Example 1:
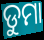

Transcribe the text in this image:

ଡୁମା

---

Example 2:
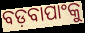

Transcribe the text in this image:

ବଡ଼ବାପାଂକୁ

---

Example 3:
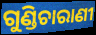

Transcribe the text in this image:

ଗୁଣ୍ଡିଚାରାଣୀ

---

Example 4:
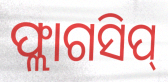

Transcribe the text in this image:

ଫ୍ଲାଗସିପ୍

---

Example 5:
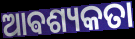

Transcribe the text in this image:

ଆଵଶ୍ୟକତା